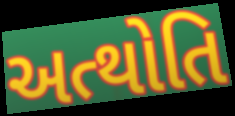
અત્થોતિ